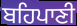
ਬਹਿਪਾਣੀ